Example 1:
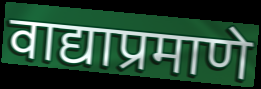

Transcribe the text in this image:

वाद्याप्रमाणे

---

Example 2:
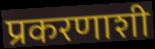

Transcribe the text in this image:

प्रकरणाशी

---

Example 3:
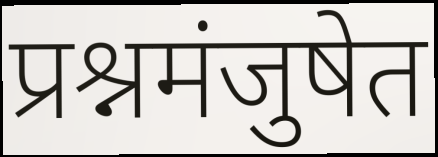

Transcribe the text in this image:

प्रश्नमंजुषेत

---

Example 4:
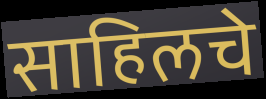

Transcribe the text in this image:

साहिलचे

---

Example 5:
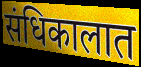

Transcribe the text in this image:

संधिकालात